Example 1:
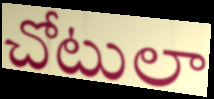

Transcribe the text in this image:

చోటులా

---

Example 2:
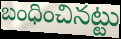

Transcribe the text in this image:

బంధించినట్టు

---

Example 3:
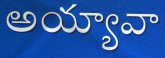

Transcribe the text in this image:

అయ్యావా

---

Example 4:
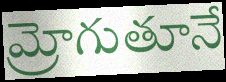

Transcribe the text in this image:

మ్రోగుతూనే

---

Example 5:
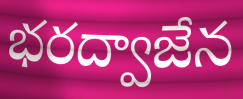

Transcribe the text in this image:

భరద్వాజేన